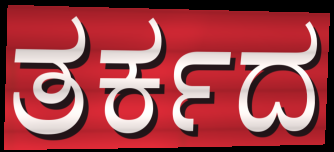
ತರ್ಕದ